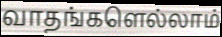
வாதங்களெல்லாம்